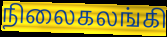
நிலைகலங்கி